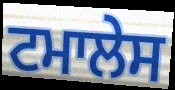
ਟਮਾਲੇਸ